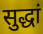
सुद्धां